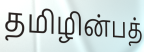
தமிழின்பத்